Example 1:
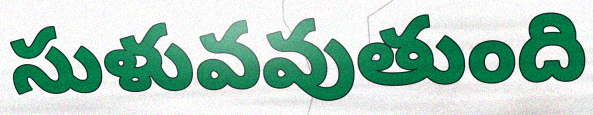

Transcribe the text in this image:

సుళువవుతుంది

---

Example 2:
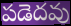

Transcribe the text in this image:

పడెదవు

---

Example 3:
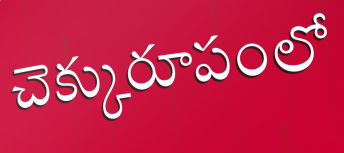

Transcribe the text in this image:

చెక్కురూపంలో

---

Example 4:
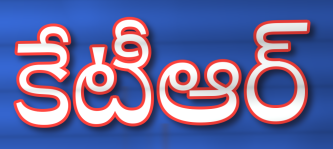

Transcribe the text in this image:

కేటీఆర్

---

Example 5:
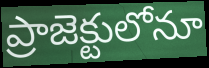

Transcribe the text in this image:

ప్రాజెక్టులోనూ